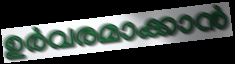
ഉർവരമാക്കാൻ